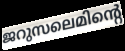
ജറുസലെമിന്റെ